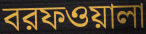
বরফওয়ালা